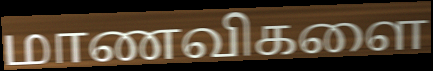
மாணவிகளை